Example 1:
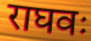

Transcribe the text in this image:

राघवः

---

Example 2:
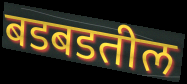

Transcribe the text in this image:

बडबडतील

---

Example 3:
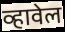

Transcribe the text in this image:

व्हावेल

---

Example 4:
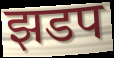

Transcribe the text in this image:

झडप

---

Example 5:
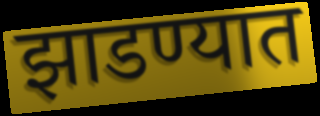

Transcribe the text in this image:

झाडण्यात